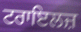
ਟਰਾਇਲਜ਼